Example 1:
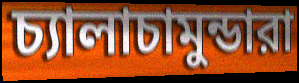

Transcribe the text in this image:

চ্যালাচামুন্ডারা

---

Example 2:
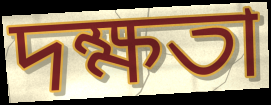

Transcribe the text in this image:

দক্ষতা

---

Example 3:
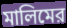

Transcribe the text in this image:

মালিমের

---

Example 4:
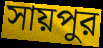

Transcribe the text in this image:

সায়পুর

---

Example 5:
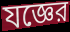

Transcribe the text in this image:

যজ্ঞের